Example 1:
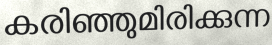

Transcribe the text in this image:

കരിഞ്ഞുമിരിക്കുന്ന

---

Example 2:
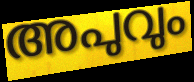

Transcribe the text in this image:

അപുവും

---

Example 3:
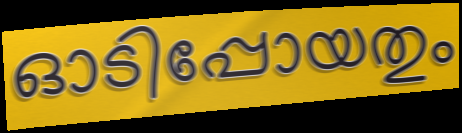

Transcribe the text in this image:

ഓടിപ്പോയതും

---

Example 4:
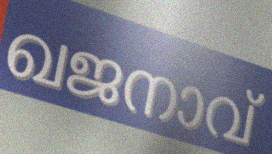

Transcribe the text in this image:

ഖജനാവ്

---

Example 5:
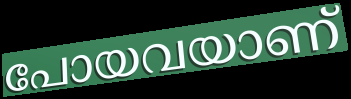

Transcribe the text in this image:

പോയവയാണ്